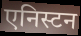
एनिस्टन